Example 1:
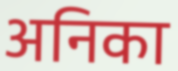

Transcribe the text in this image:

अनिका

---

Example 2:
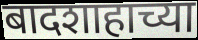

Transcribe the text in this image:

बादशाहाच्या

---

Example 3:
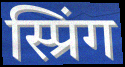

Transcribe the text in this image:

स्प्रिंग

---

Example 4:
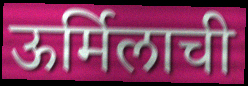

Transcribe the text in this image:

ऊर्मिलाची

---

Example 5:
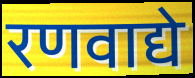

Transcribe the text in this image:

रणवाद्ये